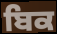
ਬਿਕ